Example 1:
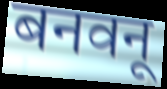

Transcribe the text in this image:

बनवनू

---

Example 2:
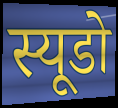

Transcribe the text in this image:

स्यूडो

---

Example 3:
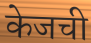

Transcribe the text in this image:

केजची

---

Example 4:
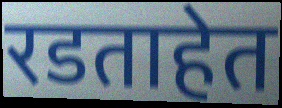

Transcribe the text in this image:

रडताहेत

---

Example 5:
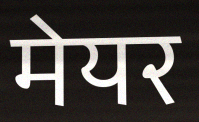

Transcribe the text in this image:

मेयर